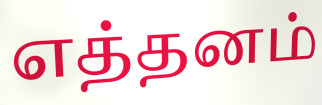
எத்தனம்